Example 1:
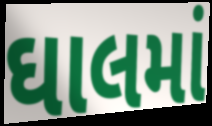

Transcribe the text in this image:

ઘાલમાં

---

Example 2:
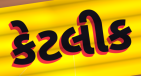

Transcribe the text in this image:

કેટલીક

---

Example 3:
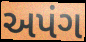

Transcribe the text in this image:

અપંગ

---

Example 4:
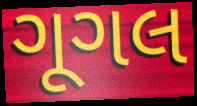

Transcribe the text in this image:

ગૂગલ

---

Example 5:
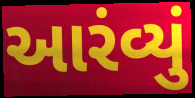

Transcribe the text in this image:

આરંવ્યું